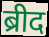
ब्रीद